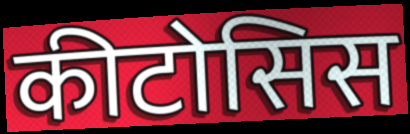
कीटोसिस